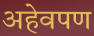
अहेवपण